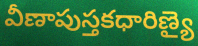
వీణాపుస్తకధారిణ్యై